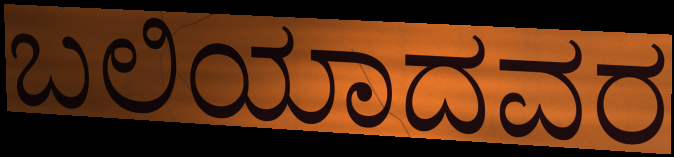
ಬಲಿಯಾದವರ